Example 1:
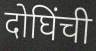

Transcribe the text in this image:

दोघिंची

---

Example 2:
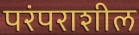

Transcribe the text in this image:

परंपराशील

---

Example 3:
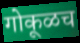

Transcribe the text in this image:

गोकूळच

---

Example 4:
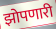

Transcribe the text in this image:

झोपणारी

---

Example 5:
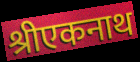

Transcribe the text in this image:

श्रीएकनाथ